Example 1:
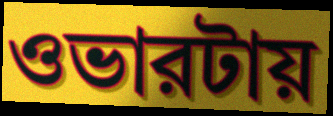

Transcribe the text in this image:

ওভারটায়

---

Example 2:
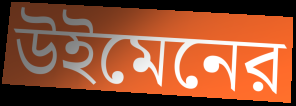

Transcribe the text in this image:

উইমেনের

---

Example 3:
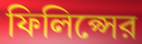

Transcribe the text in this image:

ফিলিপ্সের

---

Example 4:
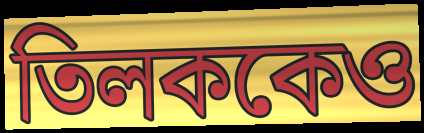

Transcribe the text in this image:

তিলককেও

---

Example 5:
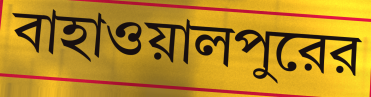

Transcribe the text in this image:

বাহাওয়ালপুরের